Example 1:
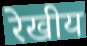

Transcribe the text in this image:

रेखीय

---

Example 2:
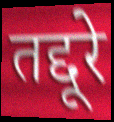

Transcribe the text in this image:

तद्दूरे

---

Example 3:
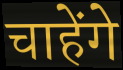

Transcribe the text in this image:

चाहेंगे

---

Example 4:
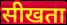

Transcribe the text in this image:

सीखता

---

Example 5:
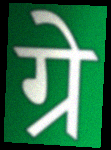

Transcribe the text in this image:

ग्रे